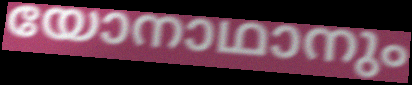
യോനാഥാനും